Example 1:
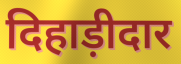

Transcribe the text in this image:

दिहाड़ीदार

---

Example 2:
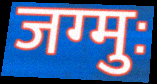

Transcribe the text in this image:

जग्मुः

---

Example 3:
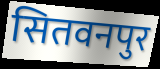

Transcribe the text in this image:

सितवनपुर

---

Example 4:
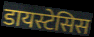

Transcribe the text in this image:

डायस्टेसिस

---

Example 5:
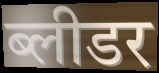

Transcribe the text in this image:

ब्लीडर